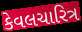
કેવલચારિત્ર